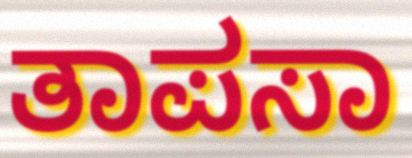
ತಾಪಸಾ